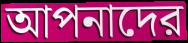
আপনাদের